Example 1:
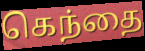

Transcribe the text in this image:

கெந்தை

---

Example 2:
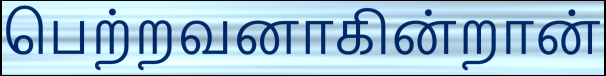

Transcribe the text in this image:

பெற்றவனாகின்றான்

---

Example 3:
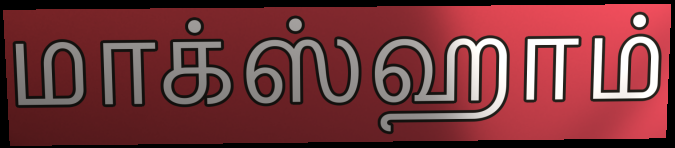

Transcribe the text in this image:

மாக்ஸ்ஹாம்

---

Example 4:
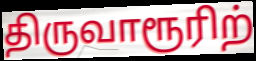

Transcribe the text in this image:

திருவாரூரிற்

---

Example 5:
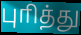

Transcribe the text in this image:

புரித்து